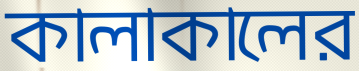
কালাকালের